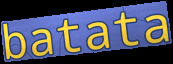
batata